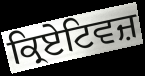
ਕ੍ਰਿਏਟਿਵਜ਼